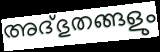
അദ്ഭുതങ്ങളും